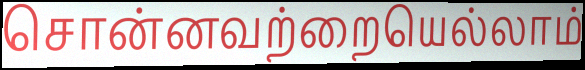
சொன்னவற்றையெல்லாம்